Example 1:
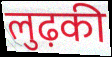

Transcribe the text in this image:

लुढ़की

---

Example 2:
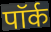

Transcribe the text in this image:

पॉर्क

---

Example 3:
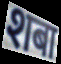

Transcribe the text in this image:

शबा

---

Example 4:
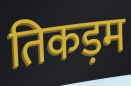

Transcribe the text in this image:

तिकड़म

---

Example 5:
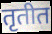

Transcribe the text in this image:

तृतीत